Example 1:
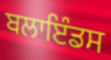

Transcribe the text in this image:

ਬਲਾਇੰਡਸ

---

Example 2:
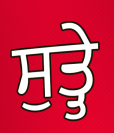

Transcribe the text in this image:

ਸੁਤ੍ਤੇ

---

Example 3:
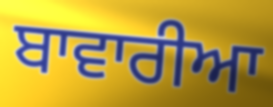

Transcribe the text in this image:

ਬਾਵਾਰੀਆ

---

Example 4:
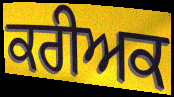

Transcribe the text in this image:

ਕਰੀਅਕ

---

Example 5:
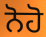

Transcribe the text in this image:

ਨੋਹੋ